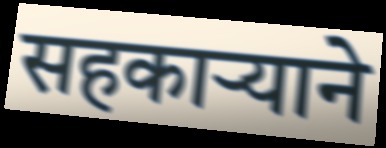
सहकाऱ्याने